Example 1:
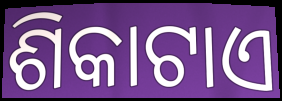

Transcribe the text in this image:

ଶିକାଟାଏ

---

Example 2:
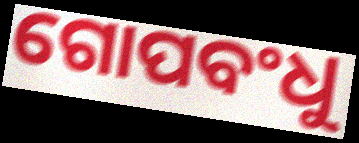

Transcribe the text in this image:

ଗୋପବଂଧୁ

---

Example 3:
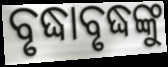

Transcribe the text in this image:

ବୃଦ୍ଧାବୃଦ୍ଧଙ୍କୁ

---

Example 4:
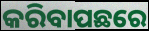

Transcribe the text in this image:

କରିବାପଛରେ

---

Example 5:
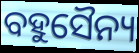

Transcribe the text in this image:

ବହୁସୈନ୍ୟ